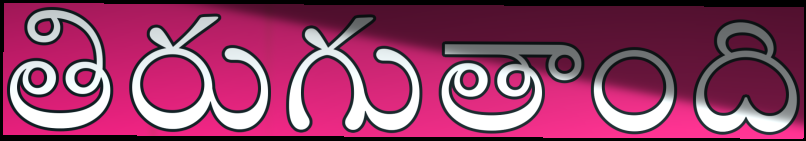
తిరుగుతాంది